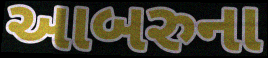
આબરુના